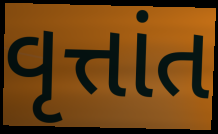
વૃત્તાંત